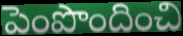
పెంపొందించి